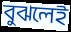
বুঝলেই